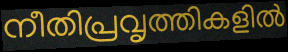
നീതിപ്രവൃത്തികളിൽ